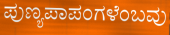
ಪುಣ್ಯಪಾಪಂಗಳೆಂಬವು